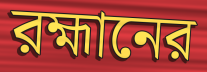
রহ্মানের